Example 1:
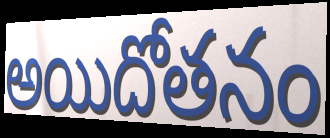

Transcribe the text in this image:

అయిదోతనం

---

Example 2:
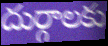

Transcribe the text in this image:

దుర్గాలకు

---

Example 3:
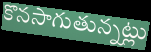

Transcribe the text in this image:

కొనసాగుతున్నట్లు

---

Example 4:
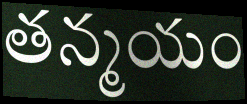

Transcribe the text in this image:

తన్మయం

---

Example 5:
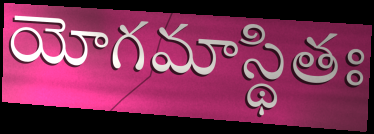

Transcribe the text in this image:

యోగమాస్థితః